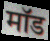
मॉड